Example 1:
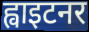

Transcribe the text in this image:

ह्वाइटनर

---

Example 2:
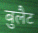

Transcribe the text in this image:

बुलैट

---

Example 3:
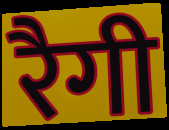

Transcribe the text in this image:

रैगी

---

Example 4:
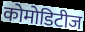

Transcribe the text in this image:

कोमोडिटीज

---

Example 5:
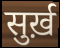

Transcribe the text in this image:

सुर्ख़